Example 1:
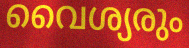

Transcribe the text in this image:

വൈശ്യരും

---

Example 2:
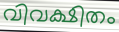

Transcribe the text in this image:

വിവക്ഷിതം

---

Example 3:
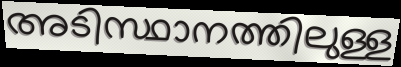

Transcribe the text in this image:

അടിസ്ഥാനത്തിലുള്ള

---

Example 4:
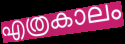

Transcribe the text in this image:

എത്രകാലം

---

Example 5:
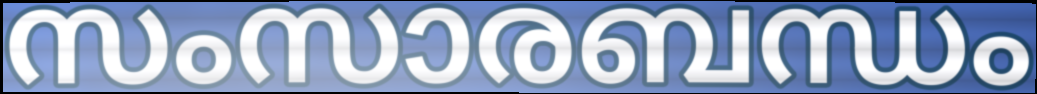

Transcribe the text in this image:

സംസാരബന്ധം